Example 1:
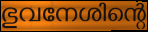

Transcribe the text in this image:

ഭുവനേശിന്റെ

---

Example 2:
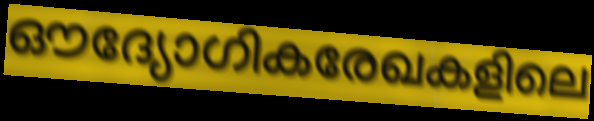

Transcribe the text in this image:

ഔദ്യോഗികരേഖകളിലെ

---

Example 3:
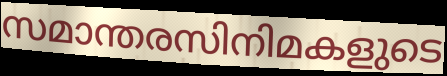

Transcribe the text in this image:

സമാന്തരസിനിമകളുടെ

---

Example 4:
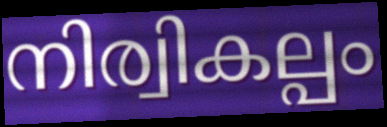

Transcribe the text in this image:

നിര്വികല്പം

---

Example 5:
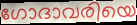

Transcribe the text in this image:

ഗോദാവരിയെ